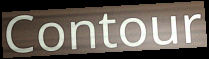
Contour